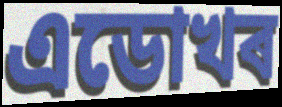
এডোখৰ